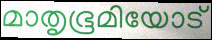
മാതൃഭൂമിയോട്